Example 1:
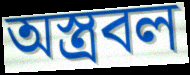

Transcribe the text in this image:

অস্ত্রবল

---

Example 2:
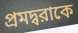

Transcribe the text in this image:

প্রমদ্বরাকে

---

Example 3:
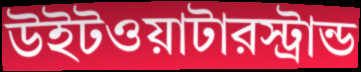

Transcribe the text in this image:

উইটওয়াটারস্ট্রান্ড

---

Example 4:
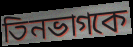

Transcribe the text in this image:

তিনভাগকে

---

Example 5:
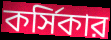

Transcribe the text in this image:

কর্সিকার